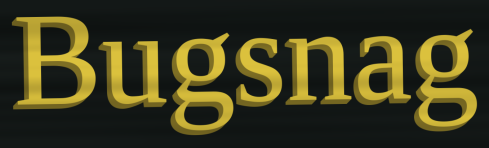
Bugsnag